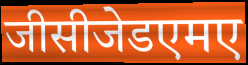
जीसीजेडएमए